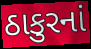
ઠાકુરનાં